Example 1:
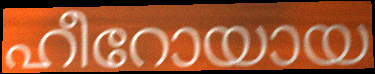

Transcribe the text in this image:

ഹീറോയായ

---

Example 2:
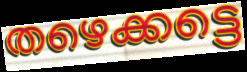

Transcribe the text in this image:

തഴെക്കട്ടെ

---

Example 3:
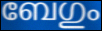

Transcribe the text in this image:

ബേഗും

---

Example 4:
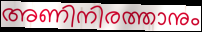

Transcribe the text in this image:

അണിനിരത്താനും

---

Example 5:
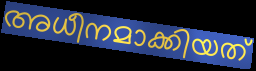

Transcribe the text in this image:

അധീനമാക്കിയത്